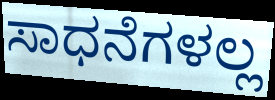
ಸಾಧನೆಗಳಲ್ಲ